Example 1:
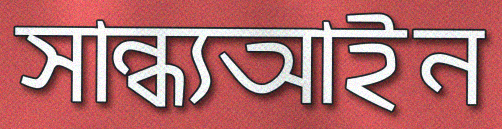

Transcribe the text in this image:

সান্ধ্যআইন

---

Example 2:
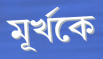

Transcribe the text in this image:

মূর্খকে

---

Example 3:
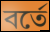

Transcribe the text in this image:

বর্তে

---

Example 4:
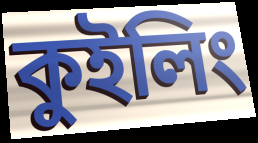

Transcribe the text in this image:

কুইলিং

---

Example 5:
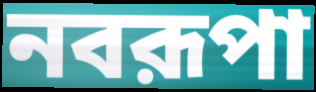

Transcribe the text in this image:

নবরূপা